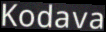
Kodava